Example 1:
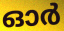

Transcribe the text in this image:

ഓർ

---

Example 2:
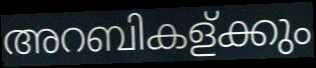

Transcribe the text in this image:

അറബികള്ക്കും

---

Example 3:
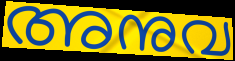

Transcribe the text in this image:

അനുവ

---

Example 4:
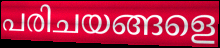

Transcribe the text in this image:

പരിചയങ്ങളെ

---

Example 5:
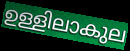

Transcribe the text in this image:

ഉള്ളിലാകുല